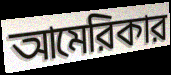
আমেরিকার